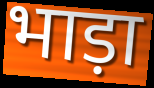
भाड़ा